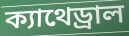
ক্যাথেড্রাল